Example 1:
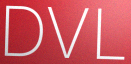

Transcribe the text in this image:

DVL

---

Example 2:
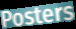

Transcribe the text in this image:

Posters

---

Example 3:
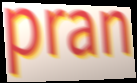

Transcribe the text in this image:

pran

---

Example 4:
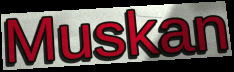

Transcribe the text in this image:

Muskan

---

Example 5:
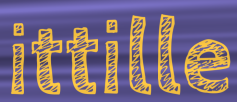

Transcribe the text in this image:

ittille